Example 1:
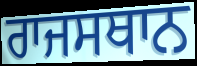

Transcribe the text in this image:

ਰਾਜਸਥਾਨ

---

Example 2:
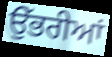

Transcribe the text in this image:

ਉੱਭਰੀਆਂ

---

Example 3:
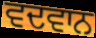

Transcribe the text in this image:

ਵਦਵਾਨ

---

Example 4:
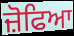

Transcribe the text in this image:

ਜ਼ੋਫਿਆ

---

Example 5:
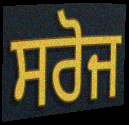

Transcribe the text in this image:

ਸਰੋਜ